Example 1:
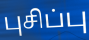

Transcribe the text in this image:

புசிப்பு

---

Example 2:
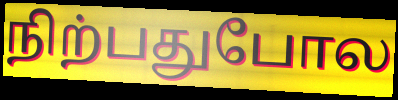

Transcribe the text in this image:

நிற்பதுபோல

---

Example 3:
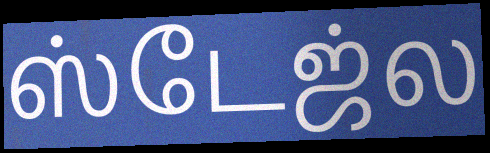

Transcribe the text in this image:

ஸ்டேஜ்ல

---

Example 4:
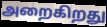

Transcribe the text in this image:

அறைகிறது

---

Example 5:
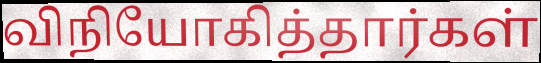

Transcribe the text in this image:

விநியோகித்தார்கள்